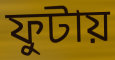
ফুটায়